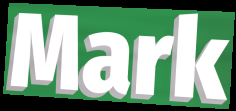
Mark